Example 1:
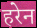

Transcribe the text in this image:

हरेन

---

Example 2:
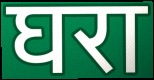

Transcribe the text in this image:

घरा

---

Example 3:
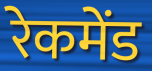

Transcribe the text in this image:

रेकमेंड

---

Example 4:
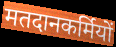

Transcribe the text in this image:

मतदानकर्मियों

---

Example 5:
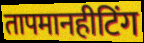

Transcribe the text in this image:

तापमानहीटिंग